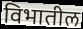
विभातील